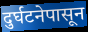
दुर्घटनेपासून